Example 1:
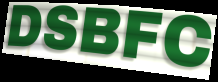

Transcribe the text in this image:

DSBFC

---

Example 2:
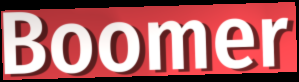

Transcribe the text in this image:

Boomer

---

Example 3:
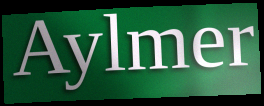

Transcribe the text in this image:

Aylmer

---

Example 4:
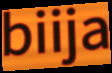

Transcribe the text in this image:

biija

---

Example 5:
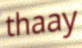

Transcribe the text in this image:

thaay